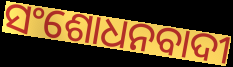
ସଂଶୋଧନବାଦୀ